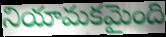
నియామకమైంది